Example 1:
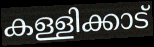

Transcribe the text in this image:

കള്ളിക്കാട്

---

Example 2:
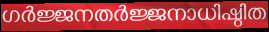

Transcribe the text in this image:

ഗർജ്ജനതർജ്ജനാധിഷ്ഠിത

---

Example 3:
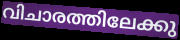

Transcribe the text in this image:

വിചാരത്തിലേക്കു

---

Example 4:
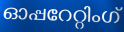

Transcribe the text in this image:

ഓപ്പറേറ്റിംഗ്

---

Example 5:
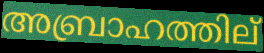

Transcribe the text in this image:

അബ്രാഹത്തില്